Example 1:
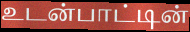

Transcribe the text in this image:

உடன்பாட்டின்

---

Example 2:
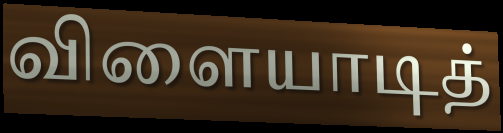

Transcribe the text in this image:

விளையாடித்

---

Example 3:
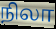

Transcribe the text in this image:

நிலா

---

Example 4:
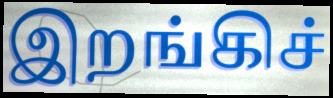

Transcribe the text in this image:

இறங்கிச்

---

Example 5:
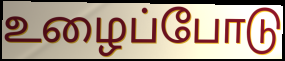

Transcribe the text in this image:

உழைப்போடு